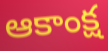
ఆకాంక్ష